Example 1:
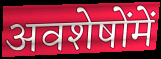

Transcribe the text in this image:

अवशेषोंमें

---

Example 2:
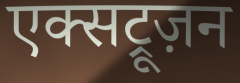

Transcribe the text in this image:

एक्सट्रूज़न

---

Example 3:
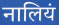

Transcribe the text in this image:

नालियं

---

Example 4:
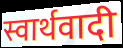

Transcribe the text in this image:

स्वार्थवादी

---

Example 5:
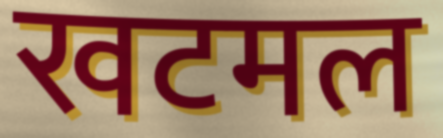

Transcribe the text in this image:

खटमल